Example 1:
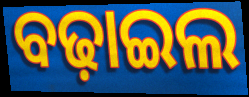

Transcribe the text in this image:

ବଢ଼ାଇଲ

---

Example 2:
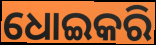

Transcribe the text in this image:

ଧୋଇକରି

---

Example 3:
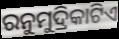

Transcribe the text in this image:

ରନୁମୁଦ୍ରିକାଟିଏ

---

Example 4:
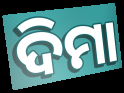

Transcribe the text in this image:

ଦିମା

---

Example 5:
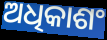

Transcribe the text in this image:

ଅଧିକାଶଂ